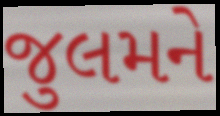
જુલમને